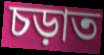
চড়াত